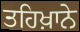
ਤਹਿਖ਼ਾਨੇ